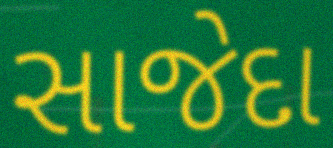
સાજેદા